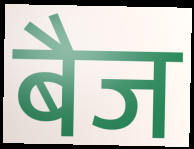
बैज